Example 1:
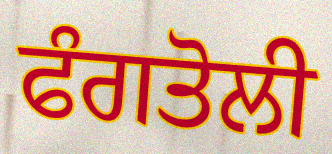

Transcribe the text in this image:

ਫੰਗਤੋਲੀ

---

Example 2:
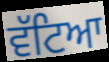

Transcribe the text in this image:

ਵੱਟਿਆ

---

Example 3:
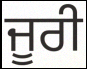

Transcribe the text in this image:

ਜੂਰੀ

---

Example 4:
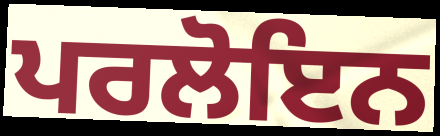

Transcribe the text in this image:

ਪਰਲੋਇਨ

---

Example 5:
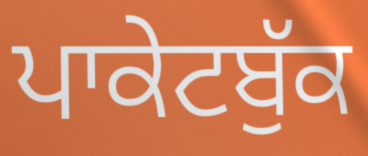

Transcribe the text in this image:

ਪਾਕੇਟਬੁੱਕ